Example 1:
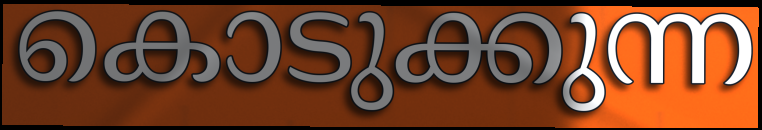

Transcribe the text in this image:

കൊടുക്കുന്ന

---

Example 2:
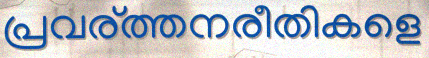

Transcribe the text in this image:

പ്രവര്ത്തനരീതികളെ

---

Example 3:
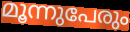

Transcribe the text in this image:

മൂന്നുപേരും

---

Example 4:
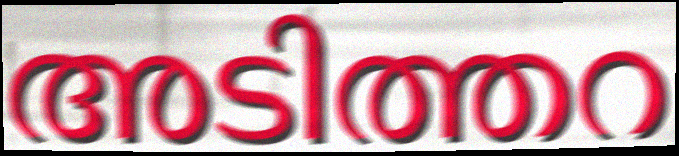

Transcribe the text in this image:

അടിത്തറ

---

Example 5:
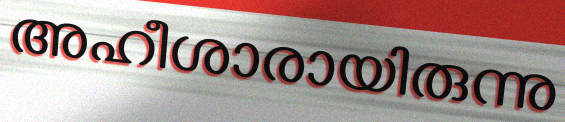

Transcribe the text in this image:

അഹീശാരായിരുന്നു